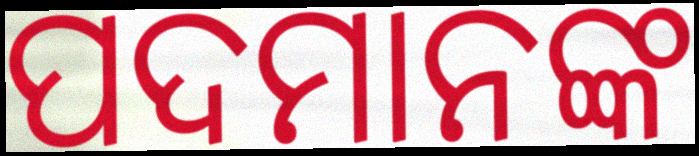
ପଦମାନଙ୍କ